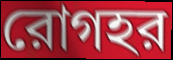
রোগহর